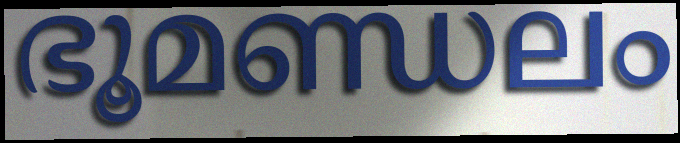
ഭൂമണ്ഡലം